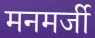
मनमर्जी